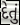
દેતું